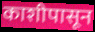
काशीपासून